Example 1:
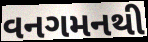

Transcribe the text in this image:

વનગમનથી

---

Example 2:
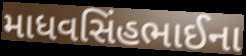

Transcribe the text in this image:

માધવસિંહભાઈના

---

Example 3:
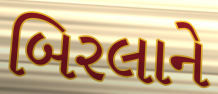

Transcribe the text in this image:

બિરલાને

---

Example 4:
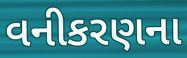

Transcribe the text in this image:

વનીકરણના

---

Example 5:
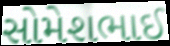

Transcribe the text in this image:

સોમેશભાઈ